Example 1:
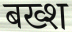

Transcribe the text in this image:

बख्श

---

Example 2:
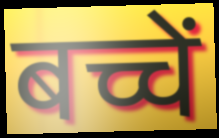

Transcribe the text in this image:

बच्चें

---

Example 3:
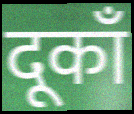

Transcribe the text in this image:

दूकाँ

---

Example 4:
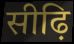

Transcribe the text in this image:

सीढ़ि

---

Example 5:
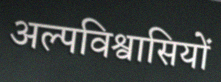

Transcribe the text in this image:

अल्पविश्वासियों